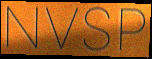
NVSP